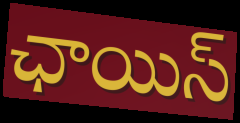
ఛాయిస్